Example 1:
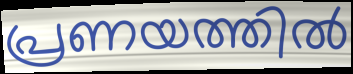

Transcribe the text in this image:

പ്രണയത്തിൽ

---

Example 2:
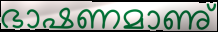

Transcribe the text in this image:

ഭാഷണമാണു്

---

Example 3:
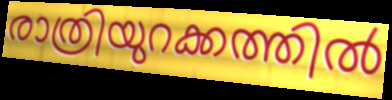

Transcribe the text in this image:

രാത്രിയുറക്കത്തിൽ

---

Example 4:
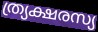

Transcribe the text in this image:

ത്ര്യക്ഷരസ്യ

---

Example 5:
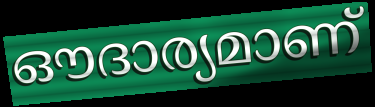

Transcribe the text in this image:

ഔദാര്യമാണ്